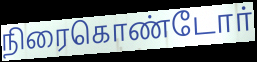
நிரைகொண்டோர்